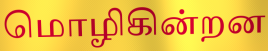
மொழிகின்றன